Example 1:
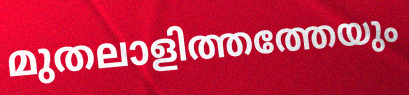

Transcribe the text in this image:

മുതലാളിത്തത്തേയും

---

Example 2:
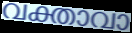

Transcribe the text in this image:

വക്താവാ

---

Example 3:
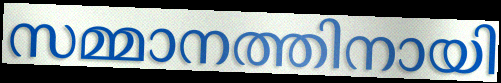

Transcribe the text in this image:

സമ്മാനത്തിനായി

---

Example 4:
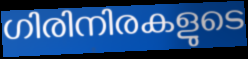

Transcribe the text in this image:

ഗിരിനിരകളുടെ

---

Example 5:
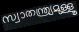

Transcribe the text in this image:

സ്വാതന്ത്ര്യമുള്ളൂ